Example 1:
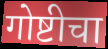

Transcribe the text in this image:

गोष्टीचा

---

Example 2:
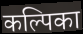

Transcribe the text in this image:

कल्पिका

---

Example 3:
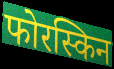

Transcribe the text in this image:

फोरस्किन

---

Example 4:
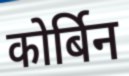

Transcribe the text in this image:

कोर्बिन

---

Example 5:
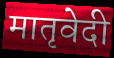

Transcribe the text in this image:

मातृवेदी